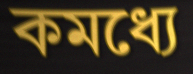
কমধ্যে